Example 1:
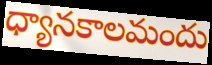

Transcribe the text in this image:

ధ్యానకాలమందు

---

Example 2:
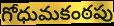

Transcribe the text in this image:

గోధుమకంఠపు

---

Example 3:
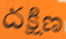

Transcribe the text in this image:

దక్షిణ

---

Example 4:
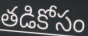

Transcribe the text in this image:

తడికోసం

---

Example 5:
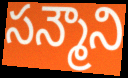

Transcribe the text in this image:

సన్మౌని